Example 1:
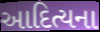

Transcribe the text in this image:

આદિત્યના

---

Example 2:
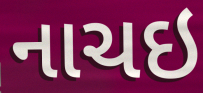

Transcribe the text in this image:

નાચઇ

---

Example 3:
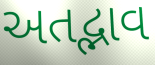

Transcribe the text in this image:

અતદ્ભાવ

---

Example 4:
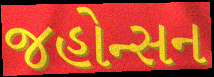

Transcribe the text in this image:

જહોન્સન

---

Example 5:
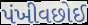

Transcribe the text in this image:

પંખીવછોઈ